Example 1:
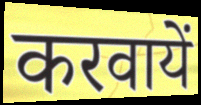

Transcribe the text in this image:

करवायें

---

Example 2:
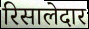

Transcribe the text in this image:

रिसालेदार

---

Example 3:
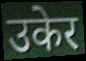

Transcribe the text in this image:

उकेर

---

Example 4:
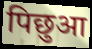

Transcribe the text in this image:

पिछुआ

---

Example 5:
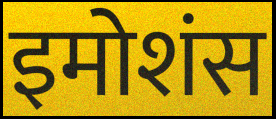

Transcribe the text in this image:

इमोशंस